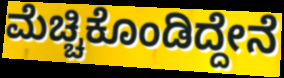
ಮೆಚ್ಚಿಕೊಂಡಿದ್ದೇನೆ